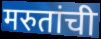
मरुतांची